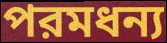
পরমধন্য